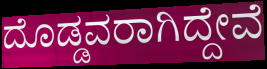
ದೊಡ್ಡವರಾಗಿದ್ದೇವೆ